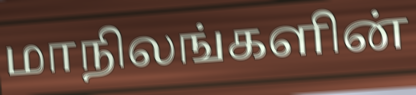
மாநிலங்களின்